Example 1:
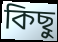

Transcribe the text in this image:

কিছু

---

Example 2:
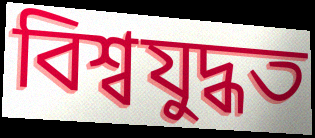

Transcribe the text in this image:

বিশ্বযুদ্ধত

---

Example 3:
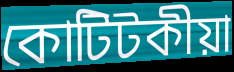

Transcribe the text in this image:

কোটিটকীয়া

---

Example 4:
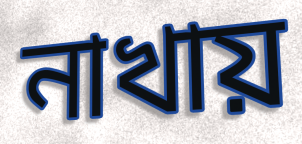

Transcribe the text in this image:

নাখায়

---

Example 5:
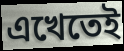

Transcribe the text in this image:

এখেতেই